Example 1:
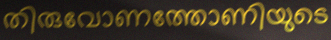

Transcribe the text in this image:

തിരുവോണത്തോണിയുടെ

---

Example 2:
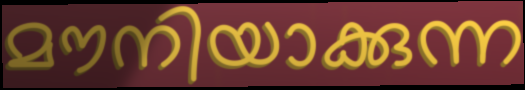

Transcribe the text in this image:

മൗനിയാക്കുന്ന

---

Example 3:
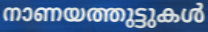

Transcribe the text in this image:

നാണയത്തുട്ടുകൾ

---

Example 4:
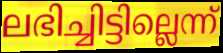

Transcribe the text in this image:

ലഭിച്ചിട്ടില്ലെന്ന്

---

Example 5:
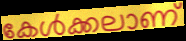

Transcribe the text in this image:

കേൾക്കലാണ്